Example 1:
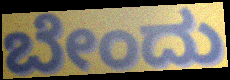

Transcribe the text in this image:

ಬೇಂದು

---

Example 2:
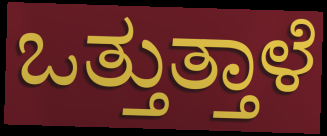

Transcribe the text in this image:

ಒತ್ತುತ್ತಾಳೆ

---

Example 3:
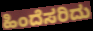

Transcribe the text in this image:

ಹಿಂದೆಸರಿದು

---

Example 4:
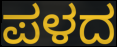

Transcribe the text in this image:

ಪಳದ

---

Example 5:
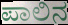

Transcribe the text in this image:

ಪಾಲಿನ